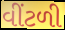
વીંટળી